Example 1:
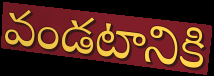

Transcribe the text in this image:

వండటానికి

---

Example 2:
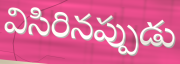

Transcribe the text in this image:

విసిరినప్పుడు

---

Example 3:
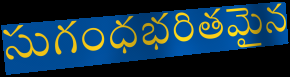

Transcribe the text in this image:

సుగంధభరితమైన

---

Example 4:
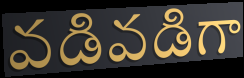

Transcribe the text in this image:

వడివడిగా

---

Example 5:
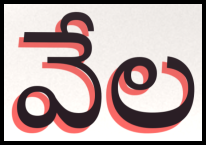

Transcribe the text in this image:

వేల